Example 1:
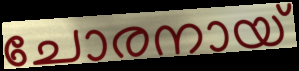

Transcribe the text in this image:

ചോരനായ്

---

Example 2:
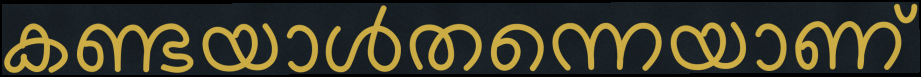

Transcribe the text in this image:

കണ്ടയാൾതന്നെയാണ്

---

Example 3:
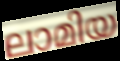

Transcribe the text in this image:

ലാമിയ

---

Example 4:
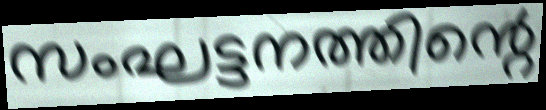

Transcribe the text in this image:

സംഘട്ടനത്തിന്റെ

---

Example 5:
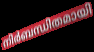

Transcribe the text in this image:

നിർബന്ധിതമായി